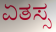
ಏತಸ್ಸ